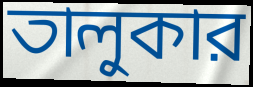
তালুকার